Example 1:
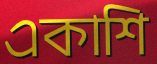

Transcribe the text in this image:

একাশি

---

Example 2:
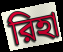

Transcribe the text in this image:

রিহা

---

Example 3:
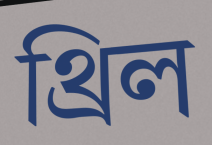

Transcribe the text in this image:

থ্রিল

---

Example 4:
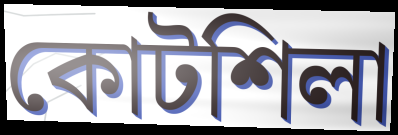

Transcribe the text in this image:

কোটশিলা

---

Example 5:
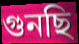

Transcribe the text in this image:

গুনছি